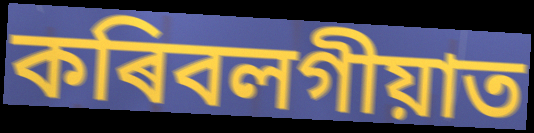
কৰিবলগীয়াত